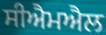
ਸੀਐਮਐਲ